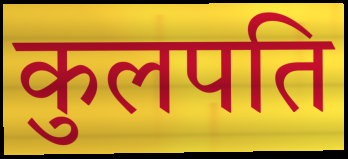
कुलपति